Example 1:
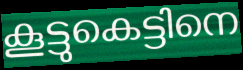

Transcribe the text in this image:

കൂട്ടുകെട്ടിനെ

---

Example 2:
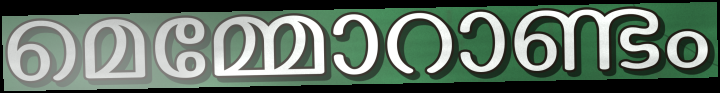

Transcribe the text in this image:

മെമ്മോറാണ്ടം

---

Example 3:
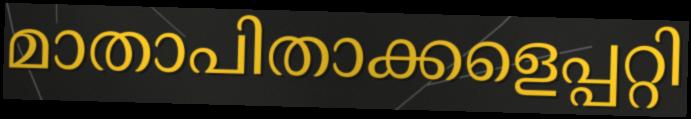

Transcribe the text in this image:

മാതാപിതാക്കളെപ്പറ്റി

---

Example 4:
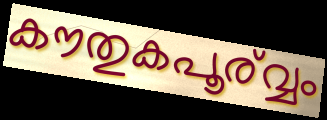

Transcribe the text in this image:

കൗതുകപൂര്വ്വം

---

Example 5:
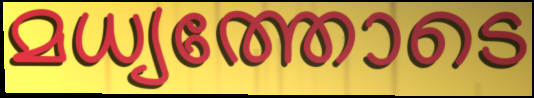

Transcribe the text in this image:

മധ്യത്തോടെ